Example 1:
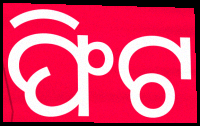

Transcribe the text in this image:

ଫିଟ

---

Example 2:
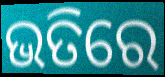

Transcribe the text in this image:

ଭତିରେ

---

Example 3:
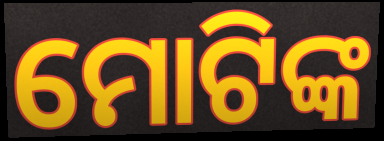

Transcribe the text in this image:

ମୋଟିଙ୍କ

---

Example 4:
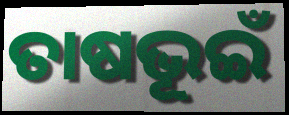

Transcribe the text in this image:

ତାଷଭୂଇଁ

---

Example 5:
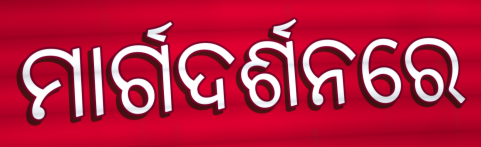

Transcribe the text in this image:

ମାର୍ଗଦର୍ଶନରେ